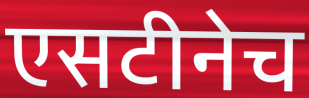
एसटीनेच